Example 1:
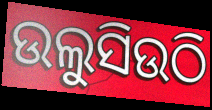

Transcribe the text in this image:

ଉଲୁସିଉଠି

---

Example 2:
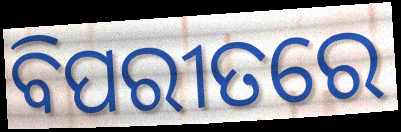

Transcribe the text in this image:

ବିପରୀତରେ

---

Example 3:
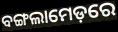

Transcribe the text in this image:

ବଙ୍ଗଲାମେଡ଼ରେ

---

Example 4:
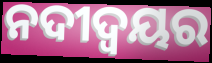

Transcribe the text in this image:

ନଦୀଦ୍ବୟର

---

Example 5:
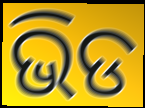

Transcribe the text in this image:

ଭିଡ